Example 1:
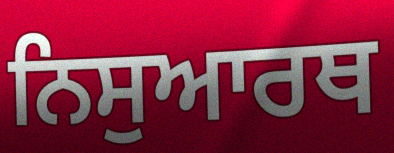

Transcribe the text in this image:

ਨਿਸੁਆਰਥ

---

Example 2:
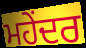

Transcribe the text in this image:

ਮਹੇਂਦਰ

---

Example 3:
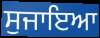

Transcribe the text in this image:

ਸੁਜਾਇਆ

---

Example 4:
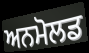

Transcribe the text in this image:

ਅਨਮੋਲਡ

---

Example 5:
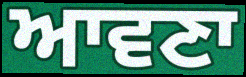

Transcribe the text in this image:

ਆਵਣਾ